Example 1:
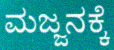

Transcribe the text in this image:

ಮಜ್ಜನಕ್ಕೆ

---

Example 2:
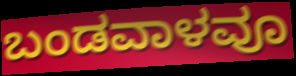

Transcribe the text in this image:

ಬಂಡವಾಳವೂ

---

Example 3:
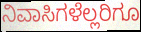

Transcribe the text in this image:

ನಿವಾಸಿಗಳೆಲ್ಲರಿಗೂ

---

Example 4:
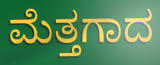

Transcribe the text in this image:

ಮೆತ್ತಗಾದ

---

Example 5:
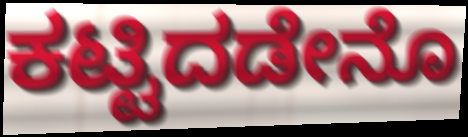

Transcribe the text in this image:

ಕಟ್ಟಿದಡೇನೊ